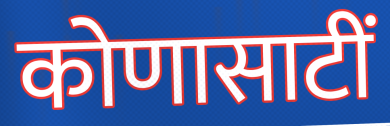
कोणासाटीं